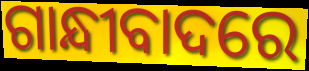
ଗାନ୍ଧୀବାଦରେ